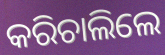
କରିଚାଲିଲେ